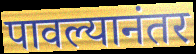
पावल्यानंतर